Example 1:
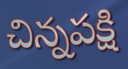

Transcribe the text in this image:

చిన్నపక్షి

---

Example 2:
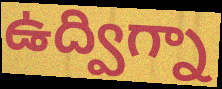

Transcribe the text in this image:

ఉద్విగ్నా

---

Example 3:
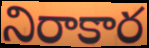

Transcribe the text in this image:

నిరాకార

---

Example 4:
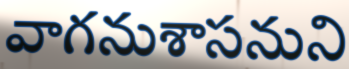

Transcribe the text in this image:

వాగనుశాసనుని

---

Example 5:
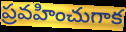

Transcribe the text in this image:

ప్రవహించుగాక